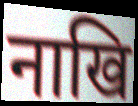
नाखि